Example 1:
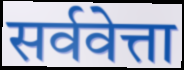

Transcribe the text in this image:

सर्ववेत्ता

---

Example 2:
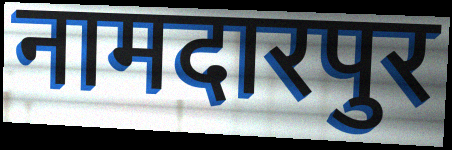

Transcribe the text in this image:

नामदारपुर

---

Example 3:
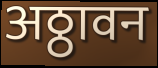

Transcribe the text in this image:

अठ्ठावन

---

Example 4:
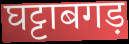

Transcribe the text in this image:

घट्टाबगड़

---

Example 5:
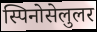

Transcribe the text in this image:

स्पिनोसेलुलर